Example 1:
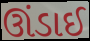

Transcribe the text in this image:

ઊંડાઈ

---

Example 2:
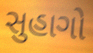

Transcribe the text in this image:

સુહાગો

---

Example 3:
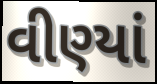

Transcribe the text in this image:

વીણ્યાં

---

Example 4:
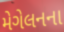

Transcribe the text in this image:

મેગેલનના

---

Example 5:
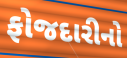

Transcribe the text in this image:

ફોજદારીનો